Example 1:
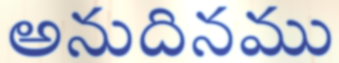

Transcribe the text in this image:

అనుదినము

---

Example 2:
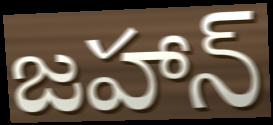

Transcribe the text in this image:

జహాన్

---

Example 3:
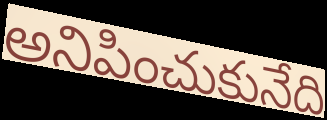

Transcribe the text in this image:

అనిపించుకునేది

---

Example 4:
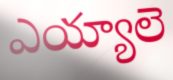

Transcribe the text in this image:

ఎయ్యాలె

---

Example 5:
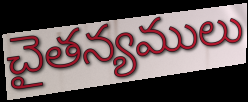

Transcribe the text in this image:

చైతన్యములు